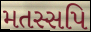
મતસ્સપિ